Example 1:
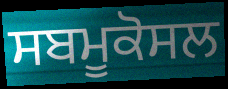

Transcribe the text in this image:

ਸਬਮੂਕੋਸਲ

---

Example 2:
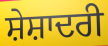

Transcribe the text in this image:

ਸ਼ੇਸ਼ਾਦਰੀ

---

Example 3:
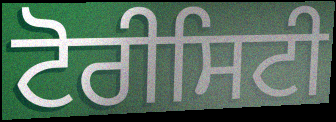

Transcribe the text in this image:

ਟੋਰੀਸਿਟੀ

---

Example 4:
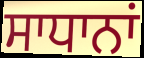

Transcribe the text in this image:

ਸਾਧਾਨਾਂ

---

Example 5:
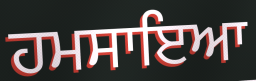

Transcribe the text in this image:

ਹਮਸਾਇਆ